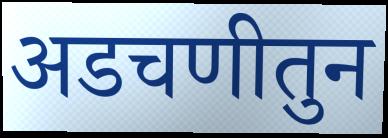
अडचणीतुन